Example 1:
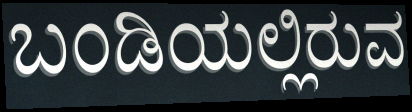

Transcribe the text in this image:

ಬಂಡಿಯಲ್ಲಿರುವ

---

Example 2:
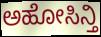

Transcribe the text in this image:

ಅಹೋಸಿನ್ತಿ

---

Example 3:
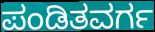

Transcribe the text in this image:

ಪಂಡಿತವರ್ಗ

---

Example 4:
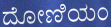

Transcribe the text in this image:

ದೋಣಿಯಂ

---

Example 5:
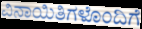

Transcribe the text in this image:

ವಿನಾಯಿತಿಗಳೊಂದಿಗೆ